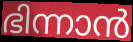
ഭിന്നാൻ